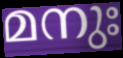
മനുഃ